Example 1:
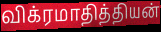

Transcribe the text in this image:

விக்ரமாதித்தியன்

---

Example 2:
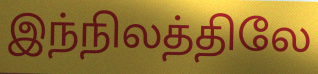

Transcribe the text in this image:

இந்நிலத்திலே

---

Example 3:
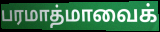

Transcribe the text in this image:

பரமாத்மாவைக்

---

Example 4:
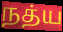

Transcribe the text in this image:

நத்ய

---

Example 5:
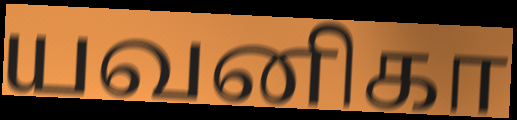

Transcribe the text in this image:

யவனிகா